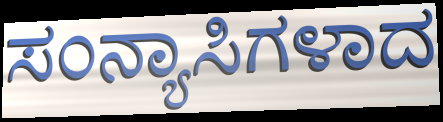
ಸಂನ್ಯಾಸಿಗಳಾದ